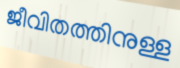
ജീവിതത്തിനുള്ള